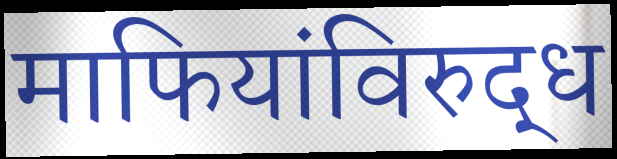
माफियांविरुद्ध